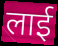
लाई